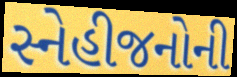
સ્નેહીજનોની